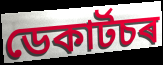
ডেকাৰ্টচৰ